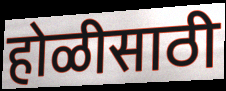
होळीसाठी